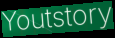
Youtstory